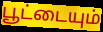
பூட்டையும்